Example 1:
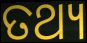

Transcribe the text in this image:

ତଥ୍ୟ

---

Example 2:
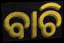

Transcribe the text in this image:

ବାଚି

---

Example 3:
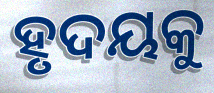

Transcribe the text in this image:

ହୃଦୟକୁ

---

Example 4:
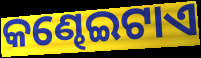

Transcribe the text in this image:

କଣ୍ଢେଇଟାଏ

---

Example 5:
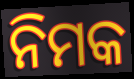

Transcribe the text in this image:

ନିମକ